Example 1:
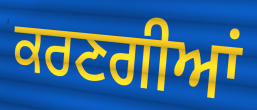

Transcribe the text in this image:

ਕਰਣਗੀਆਂ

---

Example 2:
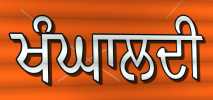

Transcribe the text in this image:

ਖੰਘਾਲਦੀ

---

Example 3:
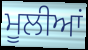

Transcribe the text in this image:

ਮੂਲੀਆਂ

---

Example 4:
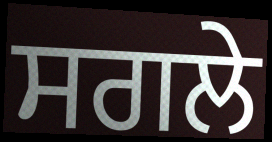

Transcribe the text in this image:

ਸਗਲੇ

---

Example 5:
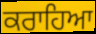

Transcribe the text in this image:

ਕਰਾਹਿਆ